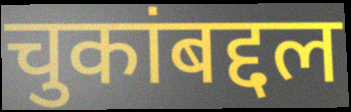
चुकांबद्दल